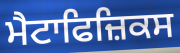
ਮੈਟਾਫਿਜ਼ਿਕਸ